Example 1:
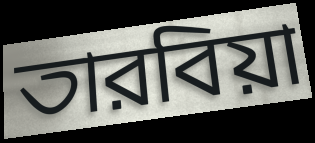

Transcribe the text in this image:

তারবিয়া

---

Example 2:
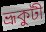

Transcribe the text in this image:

ভ্রূকুটী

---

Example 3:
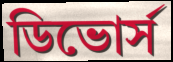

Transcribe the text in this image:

ডিভোর্স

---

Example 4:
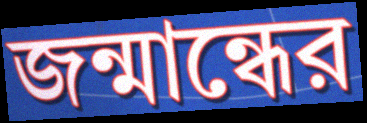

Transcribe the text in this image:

জন্মান্ধের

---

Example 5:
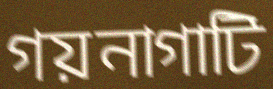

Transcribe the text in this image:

গয়নাগাটি